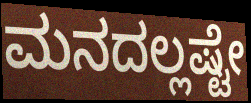
ಮನದಲ್ಲಷ್ಟೇ